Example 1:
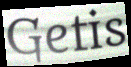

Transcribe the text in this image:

Getis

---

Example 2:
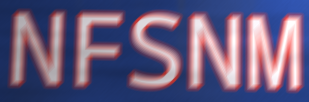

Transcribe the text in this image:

NFSNM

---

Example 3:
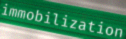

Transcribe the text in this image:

immobilization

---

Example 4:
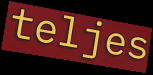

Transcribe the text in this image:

teljes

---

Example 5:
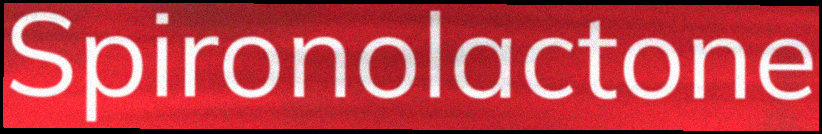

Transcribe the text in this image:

Spironolactone